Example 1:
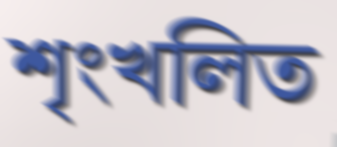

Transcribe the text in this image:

শৃংখলিত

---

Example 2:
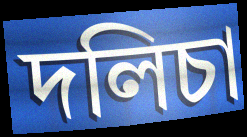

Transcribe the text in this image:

দলিচা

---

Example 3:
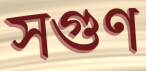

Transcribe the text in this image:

সগুণ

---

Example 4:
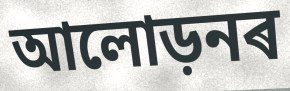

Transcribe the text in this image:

আলোড়নৰ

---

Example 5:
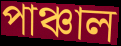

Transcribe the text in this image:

পাঞ্চাল